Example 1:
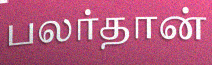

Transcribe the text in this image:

பலர்தான்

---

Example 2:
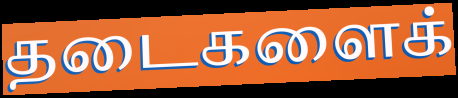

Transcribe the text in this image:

தடைகளைக்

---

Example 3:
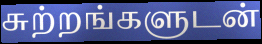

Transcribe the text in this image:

சுற்றங்களுடன்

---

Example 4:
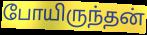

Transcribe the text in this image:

போயிருந்தன்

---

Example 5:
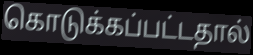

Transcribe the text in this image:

கொடுக்கப்பட்டதால்